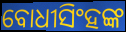
ବୋଧୀସିଂହଙ୍କ